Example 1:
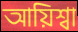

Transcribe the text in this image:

আয়িশ্বা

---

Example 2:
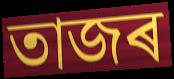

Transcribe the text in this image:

তাজৰ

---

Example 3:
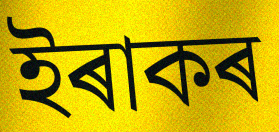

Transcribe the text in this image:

ইৰাকৰ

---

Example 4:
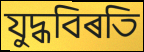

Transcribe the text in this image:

যুদ্ধবিৰতি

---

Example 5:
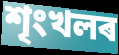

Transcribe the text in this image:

শৃংখলৰ